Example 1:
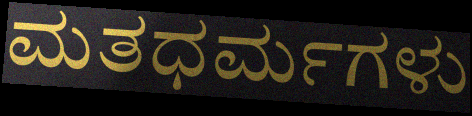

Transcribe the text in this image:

ಮತಧರ್ಮಗಳು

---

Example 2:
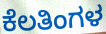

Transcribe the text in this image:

ಕೆಲತಿಂಗಳ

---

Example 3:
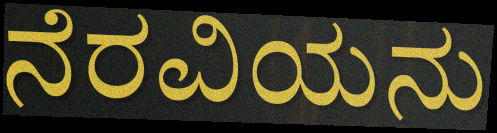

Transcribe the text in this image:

ನೆರವಿಯನು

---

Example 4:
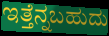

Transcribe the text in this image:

ಇತ್ತೆನ್ನಬಹುದು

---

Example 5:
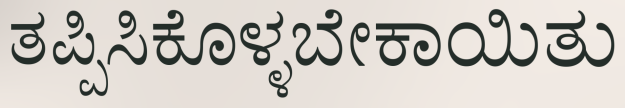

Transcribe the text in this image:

ತಪ್ಪಿಸಿಕೊಳ್ಳಬೇಕಾಯಿತು